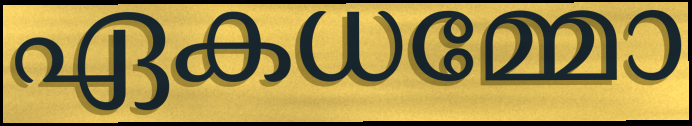
ഏകധമ്മോ